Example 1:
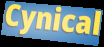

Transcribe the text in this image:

Cynical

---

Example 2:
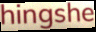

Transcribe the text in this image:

hingshe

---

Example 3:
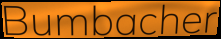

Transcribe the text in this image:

Bumbacher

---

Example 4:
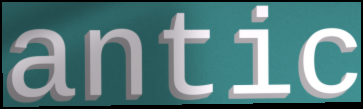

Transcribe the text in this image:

antic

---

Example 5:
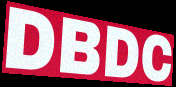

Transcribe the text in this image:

DBDC